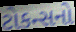
ટોકન્સનો